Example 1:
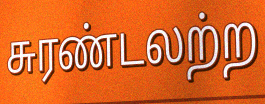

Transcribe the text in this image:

சுரண்டலற்ற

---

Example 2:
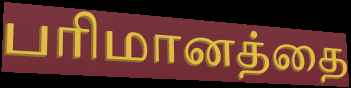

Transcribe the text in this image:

பரிமானத்தை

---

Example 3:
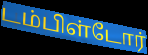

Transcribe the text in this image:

டம்பிள்டோர்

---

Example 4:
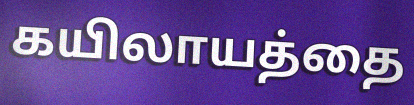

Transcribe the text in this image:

கயிலாயத்தை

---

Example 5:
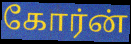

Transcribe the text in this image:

கோர்ன்